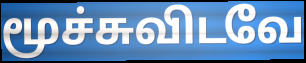
மூச்சுவிடவே